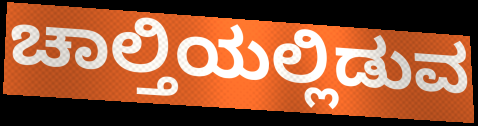
ಚಾಲ್ತಿಯಲ್ಲಿಡುವ